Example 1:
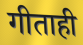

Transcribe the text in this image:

गीताही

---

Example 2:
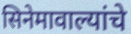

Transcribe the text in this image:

सिनेमावाल्यांचे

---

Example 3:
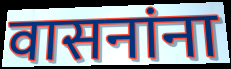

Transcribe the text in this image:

वासनांना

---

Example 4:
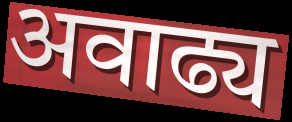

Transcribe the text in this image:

अवाढ्य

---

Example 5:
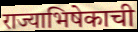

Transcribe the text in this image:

राज्याभिषेकाची